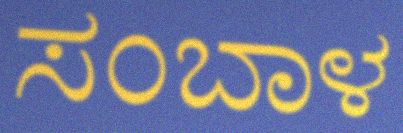
ಸಂಬಾಳ